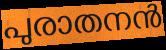
പുരാതനൻ